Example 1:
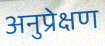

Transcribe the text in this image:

अनुप्रेक्षण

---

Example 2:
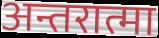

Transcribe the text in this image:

अन्तरात्मा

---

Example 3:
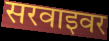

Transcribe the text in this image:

सरवाइवर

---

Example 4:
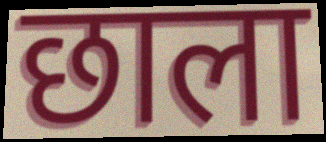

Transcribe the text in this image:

छाला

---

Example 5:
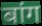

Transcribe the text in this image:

बांग